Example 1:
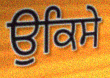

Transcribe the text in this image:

ਉਕਿਸੇ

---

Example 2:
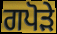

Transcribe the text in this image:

ਗਪੋੜੇ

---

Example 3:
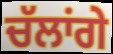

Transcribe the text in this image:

ਚੱਲਾਂਗੇ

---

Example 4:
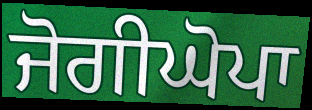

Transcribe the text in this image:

ਜੋਗੀਘੋਪਾ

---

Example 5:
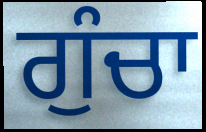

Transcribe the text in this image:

ਗੁੰਚਾ